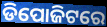
ଡିପୋଜିଟରେ